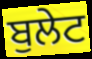
ਬੁਲੇਟ